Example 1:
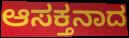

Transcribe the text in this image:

ಆಸಕ್ತನಾದ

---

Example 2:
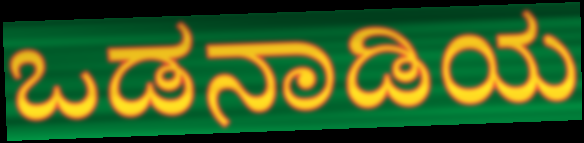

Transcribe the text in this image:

ಒಡನಾಡಿಯ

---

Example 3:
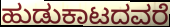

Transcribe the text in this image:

ಹುಡುಕಾಟದವರೆ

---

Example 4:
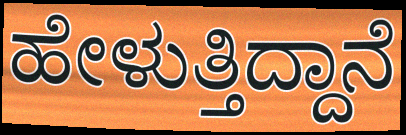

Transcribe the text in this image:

ಹೇಳುತ್ತಿದ್ದಾನೆ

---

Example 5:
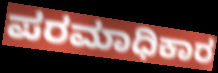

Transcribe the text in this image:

ಪರಮಾಧಿಕಾರ